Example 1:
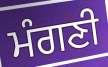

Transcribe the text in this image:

ਮੰਗਣੀ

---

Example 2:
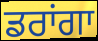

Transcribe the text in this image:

ਡਰਾਂਗਾ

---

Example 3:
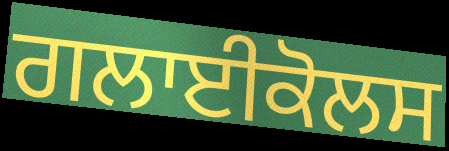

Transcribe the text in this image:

ਗਲਾਈਕੋਲਸ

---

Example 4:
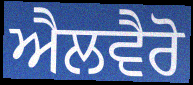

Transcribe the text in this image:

ਐਲਵੈਰੋ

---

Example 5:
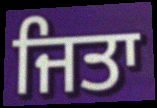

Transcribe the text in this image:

ਜਿਤਾ